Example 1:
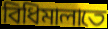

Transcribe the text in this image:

বিধিমালাতে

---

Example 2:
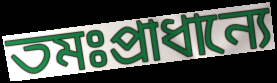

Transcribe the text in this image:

তমঃপ্রাধান্যে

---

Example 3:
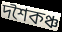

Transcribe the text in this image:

দশৈকঞ্চ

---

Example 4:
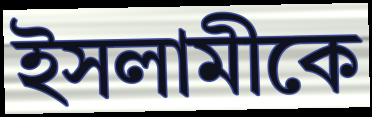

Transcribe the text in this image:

ইসলামীকে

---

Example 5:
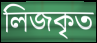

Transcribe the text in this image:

লিজকৃত